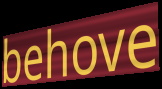
behove